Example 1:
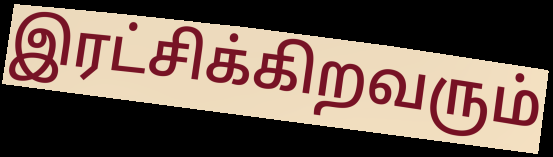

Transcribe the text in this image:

இரட்சிக்கிறவரும்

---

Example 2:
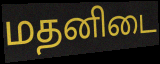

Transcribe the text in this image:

மதனிடை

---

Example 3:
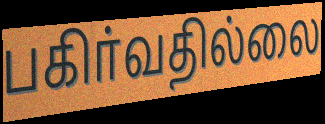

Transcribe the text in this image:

பகிர்வதில்லை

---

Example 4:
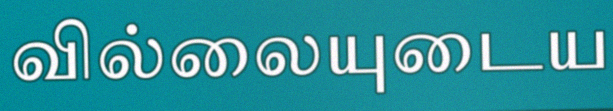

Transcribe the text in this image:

வில்லையுடைய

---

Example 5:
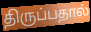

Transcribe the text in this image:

திருப்பதால்